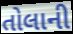
તોલાની